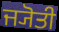
ਜ੍ਯੋਤੀ